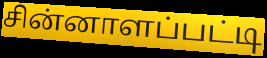
சின்னாளப்பட்டி